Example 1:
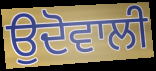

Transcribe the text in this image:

ਉਦੋਵਾਲੀ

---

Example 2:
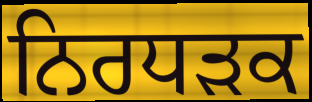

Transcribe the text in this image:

ਨਿਰਧੜਕ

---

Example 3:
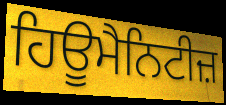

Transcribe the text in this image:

ਹਿਊਮੈਨਿਟੀਜ਼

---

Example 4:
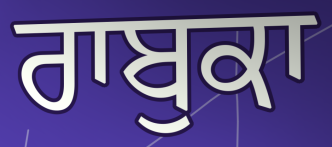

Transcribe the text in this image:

ਰਾਬੁਕਾ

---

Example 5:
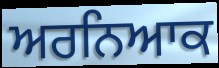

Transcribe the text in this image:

ਅਰਨਿਆਕ